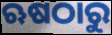
ଋଷଠାରୁ